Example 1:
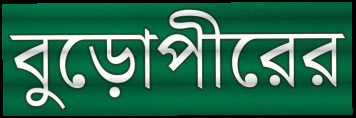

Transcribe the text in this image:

বুড়োপীরের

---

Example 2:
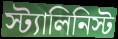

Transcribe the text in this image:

স্ট্যালিনিস্ট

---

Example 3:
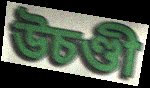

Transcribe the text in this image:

উচণ্ডী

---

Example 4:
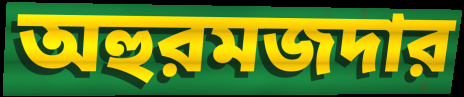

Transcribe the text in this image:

অহুরমজদার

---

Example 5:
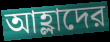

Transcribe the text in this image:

আহ্লাদের